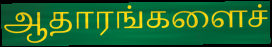
ஆதாரங்களைச்